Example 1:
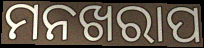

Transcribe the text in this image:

ମନଖରାପ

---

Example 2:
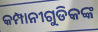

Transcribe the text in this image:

କମ୍ପାନୀଗୁଡିକଙ୍କ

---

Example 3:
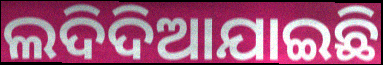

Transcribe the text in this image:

ଲଦିଦିଆଯାଇଛି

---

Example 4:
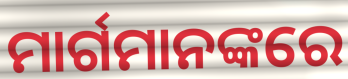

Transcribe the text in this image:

ମାର୍ଗମାନଙ୍କରେ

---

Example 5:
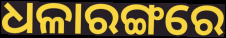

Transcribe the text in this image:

ଧଳାରଙ୍ଗରେ